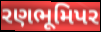
રણભૂમિપર